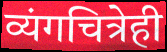
व्यंगचित्रेही